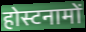
होस्टनामों